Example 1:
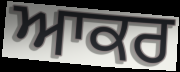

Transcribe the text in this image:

ਆਕਰ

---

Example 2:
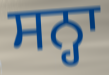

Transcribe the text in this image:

ਸਨ੍ਹਾ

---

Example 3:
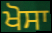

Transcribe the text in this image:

ਖੋਸਾ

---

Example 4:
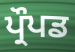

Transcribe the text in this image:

ਪ੍ਰੌਪਡ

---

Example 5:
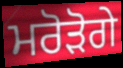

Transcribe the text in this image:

ਮਰੋੜੋਗੇ